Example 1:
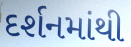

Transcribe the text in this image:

દર્શનમાંથી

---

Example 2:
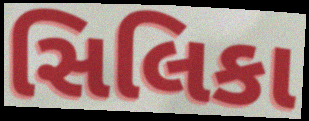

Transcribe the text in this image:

સિલિકા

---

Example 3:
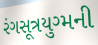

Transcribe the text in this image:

રંગસૂત્રયુગ્મની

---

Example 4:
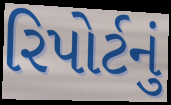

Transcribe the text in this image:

રિપોર્ટનું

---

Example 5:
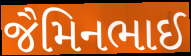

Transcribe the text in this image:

જૈમિનભાઈ